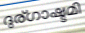
ദുര്ഗാഷ്ടമി